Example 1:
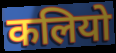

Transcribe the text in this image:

कलियो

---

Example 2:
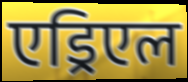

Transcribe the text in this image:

एड्रिएल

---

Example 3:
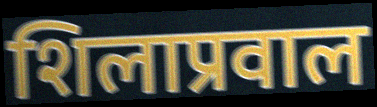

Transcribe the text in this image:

शिलाप्रवाल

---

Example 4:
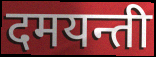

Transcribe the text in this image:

दमयन्ती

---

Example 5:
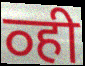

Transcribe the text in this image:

व्‍ही